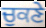
ਚੁਕਣੇ